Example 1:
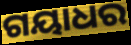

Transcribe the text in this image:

ଗୟାଧର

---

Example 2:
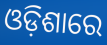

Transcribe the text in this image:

ଓଡ଼ିଶାରେ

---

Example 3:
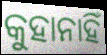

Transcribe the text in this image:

କୁହାନାହିଁ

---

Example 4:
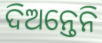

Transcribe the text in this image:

ଦିଅନ୍ତେନି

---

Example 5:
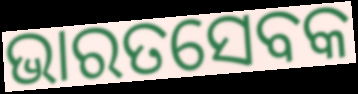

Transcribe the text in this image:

ଭାରତସେବକ